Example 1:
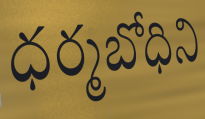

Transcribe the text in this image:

ధర్మబోధిని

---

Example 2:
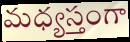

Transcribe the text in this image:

మధ్యస్తంగా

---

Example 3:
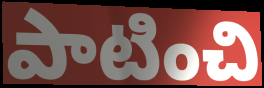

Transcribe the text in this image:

పాటించి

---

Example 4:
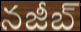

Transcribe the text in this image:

నజీబ్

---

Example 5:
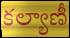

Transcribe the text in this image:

కల్యాణీ